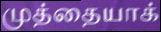
முத்தையாக்